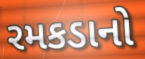
રમકડાનો